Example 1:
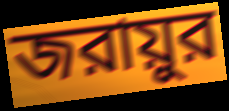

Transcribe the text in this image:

জরায়ুর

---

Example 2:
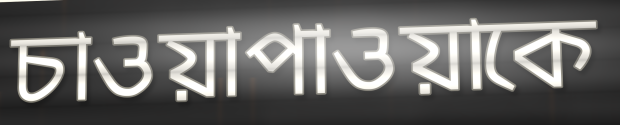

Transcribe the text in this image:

চাওয়াপাওয়াকে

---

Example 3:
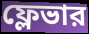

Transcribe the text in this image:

ফ্লেভার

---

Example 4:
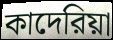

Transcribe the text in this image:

কাদেরিয়া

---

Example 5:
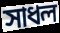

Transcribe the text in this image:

সাধল